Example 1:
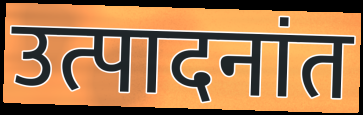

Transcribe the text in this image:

उत्पादनांत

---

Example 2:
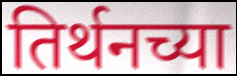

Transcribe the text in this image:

तिर्थनच्या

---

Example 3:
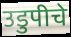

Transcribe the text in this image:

उडुपीचे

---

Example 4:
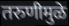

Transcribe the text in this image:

तरुणीमुळे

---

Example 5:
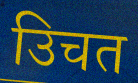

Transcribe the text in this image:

उिचत